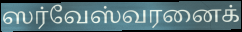
ஸர்வேஸ்வரனைக்